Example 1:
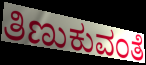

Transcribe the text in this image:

ತಿಣುಕುವಂತೆ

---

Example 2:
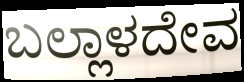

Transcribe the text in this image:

ಬಲ್ಲಾಳದೇವ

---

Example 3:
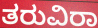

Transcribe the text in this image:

ತರುವಿರಾ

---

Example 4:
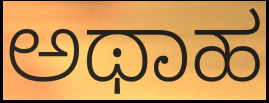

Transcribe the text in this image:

ಅಥಾಹ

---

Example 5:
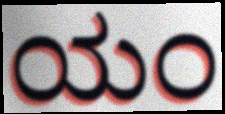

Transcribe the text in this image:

ಯಂ